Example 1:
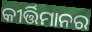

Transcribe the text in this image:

କୀର୍ତ୍ତିମାନର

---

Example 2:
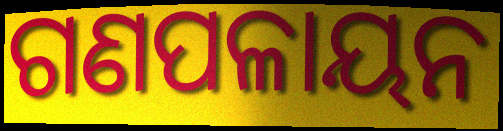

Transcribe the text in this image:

ଗଣପଳାୟନ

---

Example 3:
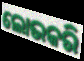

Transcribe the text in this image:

ଲୋଭକରି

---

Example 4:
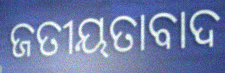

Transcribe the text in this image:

ଜତୀୟତାବାଦ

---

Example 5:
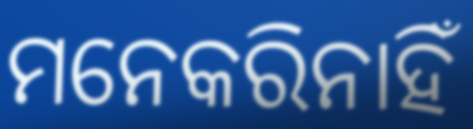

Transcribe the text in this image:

ମନେକରିନାହିଁ